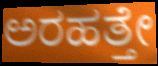
ಅರಹತ್ತೇ